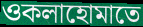
ওকলাহোমাতে